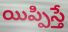
యిప్పిస్తే